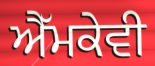
ਐੱਮਕੇਵੀ